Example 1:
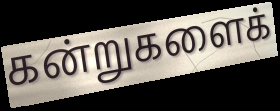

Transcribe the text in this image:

கன்றுகளைக்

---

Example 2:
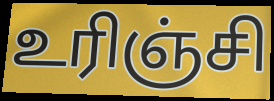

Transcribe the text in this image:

உரிஞ்சி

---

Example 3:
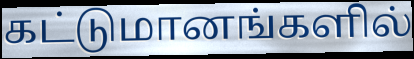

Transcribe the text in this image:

கட்டுமானங்களில்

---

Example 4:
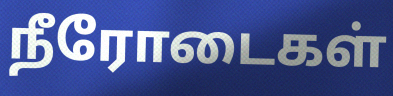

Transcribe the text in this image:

நீரோடைகள்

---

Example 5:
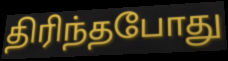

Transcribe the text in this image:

திரிந்தபோது